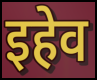
इहेव